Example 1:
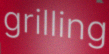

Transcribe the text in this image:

grilling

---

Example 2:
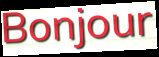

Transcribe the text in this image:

Bonjour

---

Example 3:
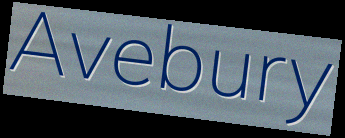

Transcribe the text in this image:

Avebury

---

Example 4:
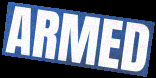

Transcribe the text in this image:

ARMED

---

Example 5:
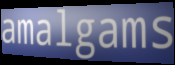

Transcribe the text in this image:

amalgams